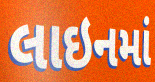
લાઇનમાં